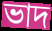
ভাদ